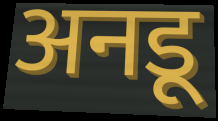
अनडू